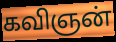
கவிஞன்